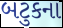
બટુકના